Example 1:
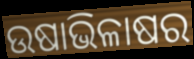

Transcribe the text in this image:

ଉଷାଭିଳାଷର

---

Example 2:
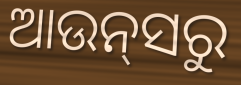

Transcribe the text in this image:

ଆଉନ୍‍ସରୁ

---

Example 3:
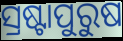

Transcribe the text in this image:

ସ୍ରଷ୍ଟାପୁରୁଷ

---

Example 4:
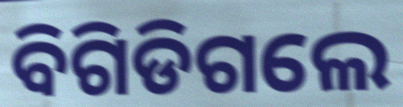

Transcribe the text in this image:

ବିଗିଡିଗଲେ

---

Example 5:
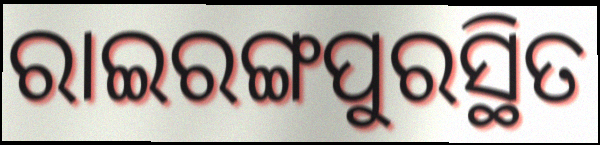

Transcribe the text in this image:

ରାଇରଙ୍ଗପୁରସ୍ଥିତ